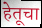
हेतूचा